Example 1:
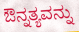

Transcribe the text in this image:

ಔನ್ನತ್ಯವನ್ನು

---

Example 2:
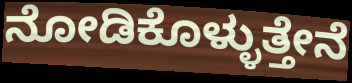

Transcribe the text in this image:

ನೋಡಿಕೊಳ್ಳುತ್ತೇನೆ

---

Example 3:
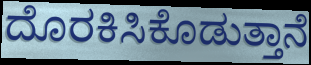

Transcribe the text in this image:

ದೊರಕಿಸಿಕೊಡುತ್ತಾನೆ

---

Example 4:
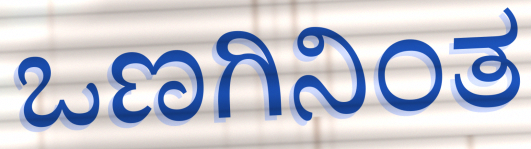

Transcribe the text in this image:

ಒಣಗಿನಿಂತ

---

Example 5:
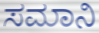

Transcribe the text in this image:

ಸಮಾನಿ